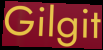
Gilgit